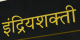
इंद्रियशक्ती